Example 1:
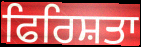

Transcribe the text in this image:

ਫਿਰਿਸ਼ਤਾ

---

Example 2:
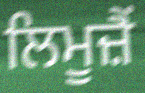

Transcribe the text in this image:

ਲਿਮੂਜ਼ੈਂ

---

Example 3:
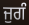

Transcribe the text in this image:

ਜੁਗੰ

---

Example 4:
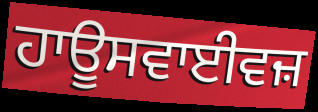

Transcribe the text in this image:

ਹਾਊਸਵਾਈਵਜ਼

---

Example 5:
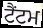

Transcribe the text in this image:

ਟੈਂਟਮ